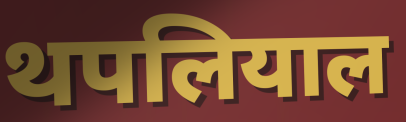
थपलियाल